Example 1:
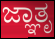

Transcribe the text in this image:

ಜ್ಞಾತೃ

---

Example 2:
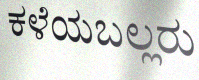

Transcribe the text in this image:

ಕಳೆಯಬಲ್ಲರು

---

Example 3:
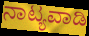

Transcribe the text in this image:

ನಾಟ್ಯವಾಡಿ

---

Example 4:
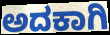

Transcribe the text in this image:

ಅದಕಾಗಿ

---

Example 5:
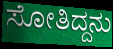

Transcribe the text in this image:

ಸೋತಿದ್ದನು